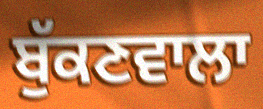
ਬੁੱਕਣਵਾਲਾ